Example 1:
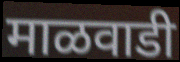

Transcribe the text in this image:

माळवाडी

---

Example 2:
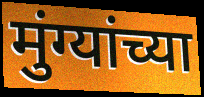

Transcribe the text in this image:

मुंग्यांच्या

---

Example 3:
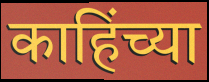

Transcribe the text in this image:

काहिंच्या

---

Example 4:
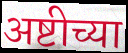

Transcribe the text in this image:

अष्टीच्या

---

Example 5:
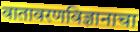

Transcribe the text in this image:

वातावरणविज्ञानाचा